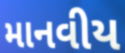
માનવીય